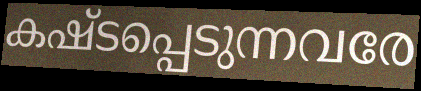
കഷ്ടപ്പെടുന്നവരേ